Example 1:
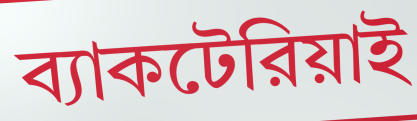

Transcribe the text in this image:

ব্যাকটেরিয়াই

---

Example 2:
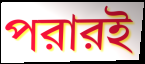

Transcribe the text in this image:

পরারই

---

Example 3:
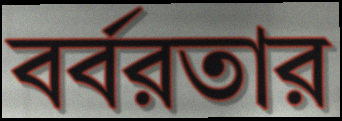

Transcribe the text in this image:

বর্বরতার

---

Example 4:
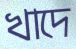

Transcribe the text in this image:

খাদে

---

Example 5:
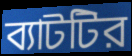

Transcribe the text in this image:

ব্যাটটির